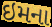
ઇમના